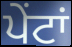
ਪੇਂਟਾਂ